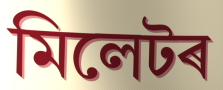
মিলেটৰ